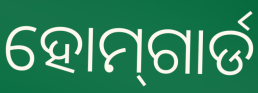
ହୋମ୍‌ଗାର୍ଡ